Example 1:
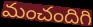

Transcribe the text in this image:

మంచందిగి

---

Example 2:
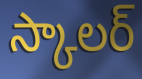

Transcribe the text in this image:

స్కాలర్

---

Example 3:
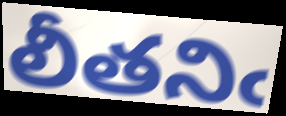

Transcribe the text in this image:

లీతనిఁ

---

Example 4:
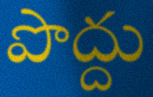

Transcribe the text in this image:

పొద్దు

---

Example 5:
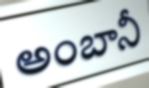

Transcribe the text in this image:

అంబానీ